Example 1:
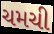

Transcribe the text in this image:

ચમચી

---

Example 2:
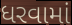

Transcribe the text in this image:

ધરવામાં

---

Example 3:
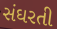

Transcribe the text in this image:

સંઘરતી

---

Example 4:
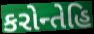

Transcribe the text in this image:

કરોન્તેહિ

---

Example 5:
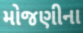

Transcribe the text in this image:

મોજણીના